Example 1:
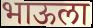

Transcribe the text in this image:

भाऊला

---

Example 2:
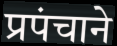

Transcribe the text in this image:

प्रपंचाने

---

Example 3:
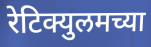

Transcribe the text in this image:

रेटिक्युलमच्या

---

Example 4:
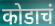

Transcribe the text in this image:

कोडाचं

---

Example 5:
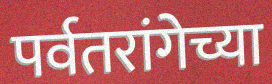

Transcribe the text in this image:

पर्वतरांगेच्या